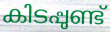
കിടപ്പുണ്ട്